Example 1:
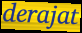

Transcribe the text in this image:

derajat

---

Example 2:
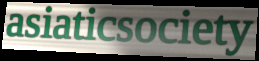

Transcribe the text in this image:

asiaticsociety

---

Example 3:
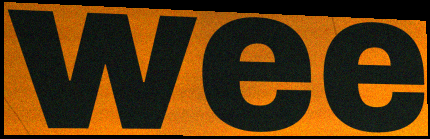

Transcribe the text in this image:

wee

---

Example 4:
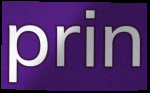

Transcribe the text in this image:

prin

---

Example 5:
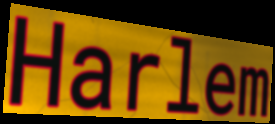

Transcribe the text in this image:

Harlem